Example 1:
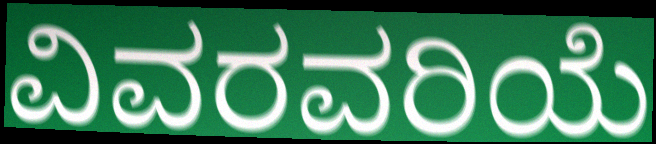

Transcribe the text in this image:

ವಿವರವರಿಯೆ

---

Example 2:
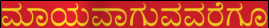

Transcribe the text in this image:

ಮಾಯವಾಗುವವರೆಗೂ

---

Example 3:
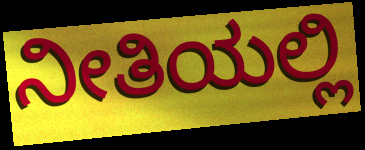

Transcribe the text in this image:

ನೀತಿಯಲ್ಲಿ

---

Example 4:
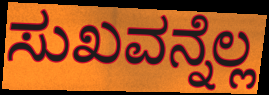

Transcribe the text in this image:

ಸುಖವನ್ನೆಲ್ಲ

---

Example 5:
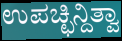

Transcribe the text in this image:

ಉಪಚ್ಛಿನ್ದಿತ್ವಾ